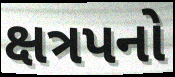
ક્ષત્રપનો